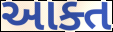
આક્ત